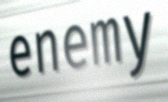
enemy